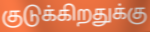
குடுக்கிறதுக்கு